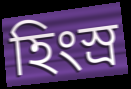
হিংস্ৰ